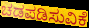
ಚಡಪಡಿಸುವಿಕೆ